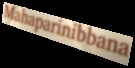
Mahaparinibbana